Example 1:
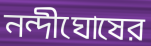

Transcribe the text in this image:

নন্দীঘোষের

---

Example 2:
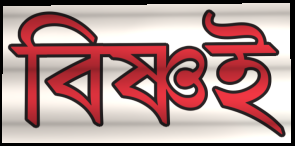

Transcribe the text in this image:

বিষ্ণই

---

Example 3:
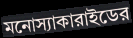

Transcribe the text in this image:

মনোস্যাকারাইডের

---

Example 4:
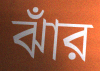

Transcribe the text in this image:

ঝাঁর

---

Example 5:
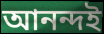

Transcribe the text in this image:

আনন্দই